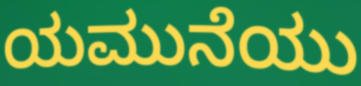
ಯಮುನೆಯು